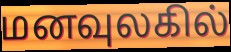
மனவுலகில்